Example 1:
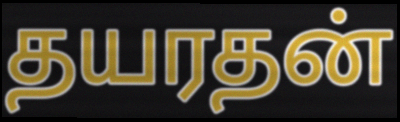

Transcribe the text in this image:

தயரதன்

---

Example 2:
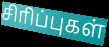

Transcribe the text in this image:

சிரிப்புகள்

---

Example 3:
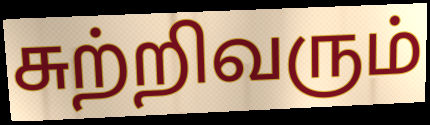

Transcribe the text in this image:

சுற்றிவரும்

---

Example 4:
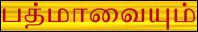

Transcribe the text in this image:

பத்மாவையும்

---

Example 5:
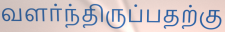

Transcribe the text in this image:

வளர்ந்திருப்பதற்கு